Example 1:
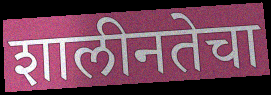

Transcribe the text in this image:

शालीनतेचा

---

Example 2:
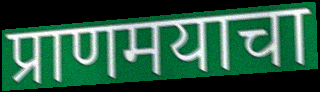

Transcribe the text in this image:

प्राणमयाचा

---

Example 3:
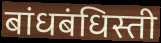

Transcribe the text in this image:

बांधबंधिस्ती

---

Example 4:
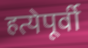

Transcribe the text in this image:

हत्येपूर्वी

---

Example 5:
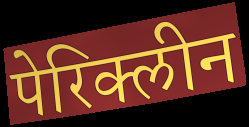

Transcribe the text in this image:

पेरिक्लीन